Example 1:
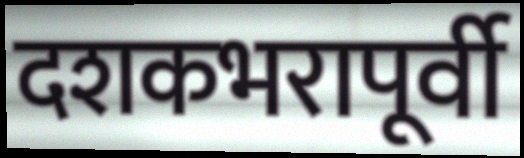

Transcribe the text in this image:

दशकभरापूर्वी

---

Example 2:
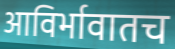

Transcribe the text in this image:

आविर्भावातच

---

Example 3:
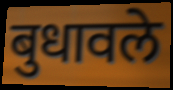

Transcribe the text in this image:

बुधावले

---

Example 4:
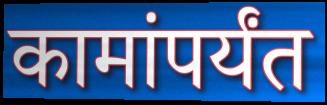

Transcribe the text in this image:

कामांपर्यंत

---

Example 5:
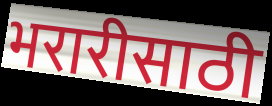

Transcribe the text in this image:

भरारीसाठी